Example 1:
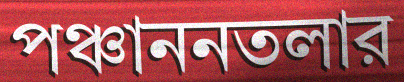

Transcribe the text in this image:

পঞ্চাননতলার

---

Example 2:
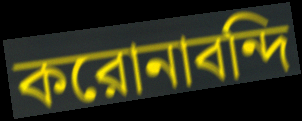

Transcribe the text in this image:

করোনাবন্দি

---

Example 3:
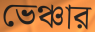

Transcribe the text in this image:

ভেঞ্চার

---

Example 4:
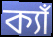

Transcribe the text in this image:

ক্যাঁ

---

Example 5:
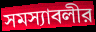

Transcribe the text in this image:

সমস্যাবলীর